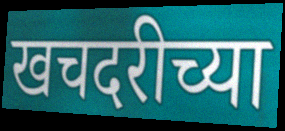
खचदरीच्या